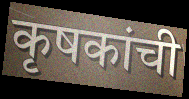
कृषकांची